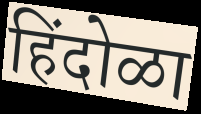
हिंदोळा